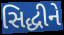
સિદ્ધીને